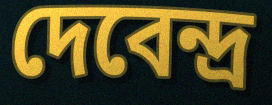
দেবেন্দ্র